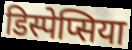
डिस्पेप्सिया